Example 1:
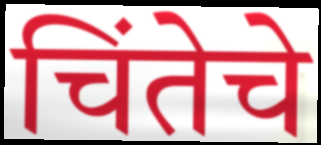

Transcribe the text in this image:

चिंतेचे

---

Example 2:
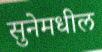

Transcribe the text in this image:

सुनेमधील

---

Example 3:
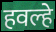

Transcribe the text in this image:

हवल्हे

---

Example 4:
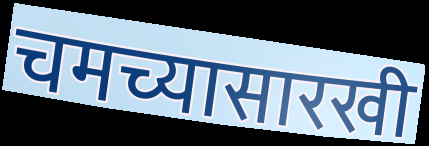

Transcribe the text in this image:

चमच्यासारखी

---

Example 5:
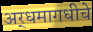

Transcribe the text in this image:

अर्धमागधीचे